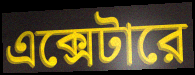
এক্সেটারে